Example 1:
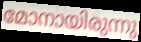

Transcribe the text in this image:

മോനായിരുന്നു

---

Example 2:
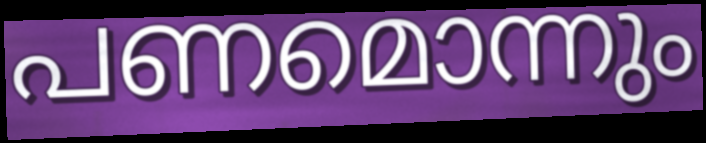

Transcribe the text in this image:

പണമൊന്നും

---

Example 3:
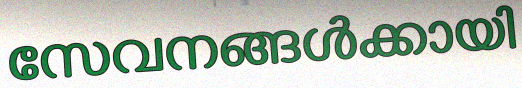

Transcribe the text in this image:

സേവനങ്ങൾക്കായി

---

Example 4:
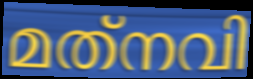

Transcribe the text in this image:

മത്‌നവി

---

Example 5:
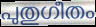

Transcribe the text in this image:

പുതുഗീതം